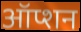
ऑप्‍शन